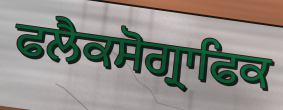
ਫਲੈਕਸੋਗ੍ਰਾਫਿਕ